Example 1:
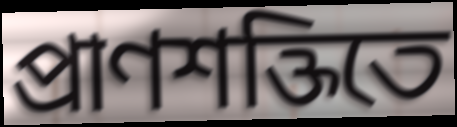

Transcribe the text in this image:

প্রাণশক্তিতে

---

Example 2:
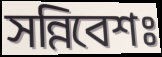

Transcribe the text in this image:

সন্নিবেশঃ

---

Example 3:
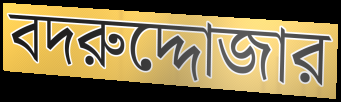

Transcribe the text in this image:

বদরুদ্দোজার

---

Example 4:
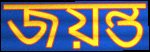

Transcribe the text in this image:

জয়ন্ত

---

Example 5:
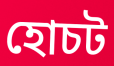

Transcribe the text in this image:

হোচট